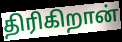
திரிகிறான்